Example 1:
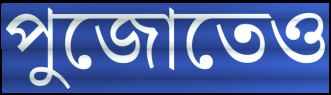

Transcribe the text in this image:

পুজোতেও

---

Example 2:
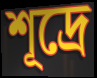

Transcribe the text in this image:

শূদ্রে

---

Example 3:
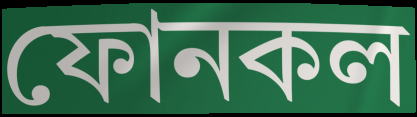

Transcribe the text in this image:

ফোনকল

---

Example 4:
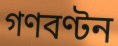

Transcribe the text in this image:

গণবণ্টন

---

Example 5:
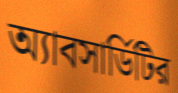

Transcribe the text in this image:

অ্যাবসার্ডিটির